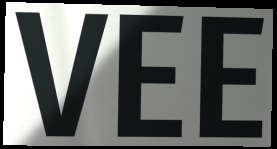
VEE